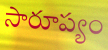
సారూప్యం